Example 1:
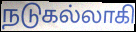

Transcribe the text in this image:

நடுகல்லாகி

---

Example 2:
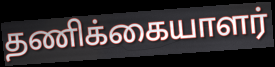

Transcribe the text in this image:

தணிக்கையாளர்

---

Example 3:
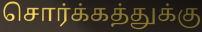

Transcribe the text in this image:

சொர்க்கத்துக்கு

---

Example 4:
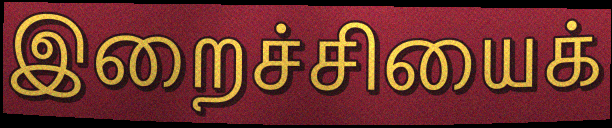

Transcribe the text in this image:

இறைச்சியைக்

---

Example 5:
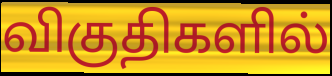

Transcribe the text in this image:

விகுதிகளில்